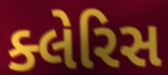
ક્લેરિસ